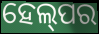
ହେଲ୍‌ପର